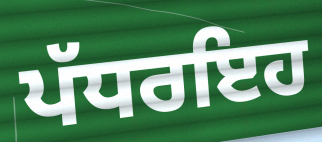
ਪੱਧਰਇਹ